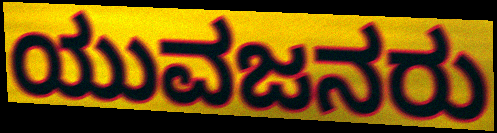
ಯುವಜನರು